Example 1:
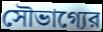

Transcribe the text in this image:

সৌভাগ্যের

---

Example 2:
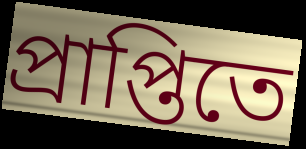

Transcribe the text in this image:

প্রাপ্তিতে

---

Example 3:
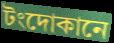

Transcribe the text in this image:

টংদোকানে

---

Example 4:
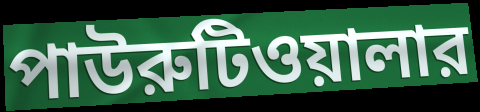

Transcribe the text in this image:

পাউরুটিওয়ালার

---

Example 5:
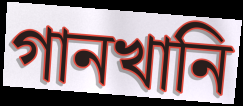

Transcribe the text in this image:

গানখানি